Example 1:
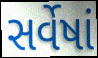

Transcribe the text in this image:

સર્વેષાં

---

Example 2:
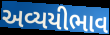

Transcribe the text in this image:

અવ્યયીભાવ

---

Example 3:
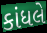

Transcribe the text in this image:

કાંધલે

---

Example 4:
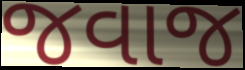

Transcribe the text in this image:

જવાજ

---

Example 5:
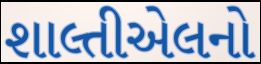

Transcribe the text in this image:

શાલ્તીએલનો